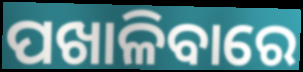
ପଖାଳିବାରେ